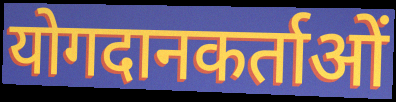
योगदानकर्ताओं